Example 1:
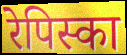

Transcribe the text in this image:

रेपिस्का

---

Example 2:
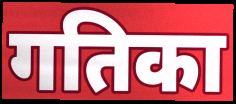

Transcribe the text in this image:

गतिका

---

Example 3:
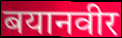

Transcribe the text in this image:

बयानवीर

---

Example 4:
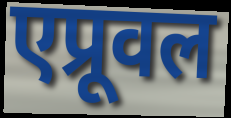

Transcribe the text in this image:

एप्रूवल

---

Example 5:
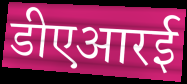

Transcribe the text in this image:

डीएआरई